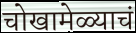
चोखामेळ्याचं